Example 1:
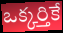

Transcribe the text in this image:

ఒక్కర్తికే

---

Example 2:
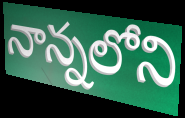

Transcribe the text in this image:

నాన్నలోని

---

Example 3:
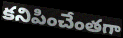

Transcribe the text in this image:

కనిపించేంతగా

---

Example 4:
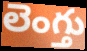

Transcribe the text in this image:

లెంగ్తు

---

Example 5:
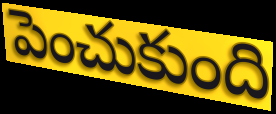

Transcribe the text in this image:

పెంచుకుంది